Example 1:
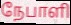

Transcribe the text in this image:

நேபாளி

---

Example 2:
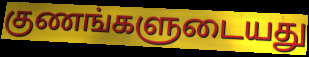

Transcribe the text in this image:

குணங்களுடையது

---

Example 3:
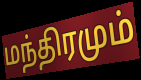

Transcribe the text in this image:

மந்திரமும்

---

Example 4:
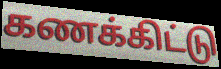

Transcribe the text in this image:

கணக்கிட்டு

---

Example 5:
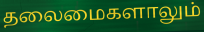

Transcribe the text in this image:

தலைமைகளாலும்